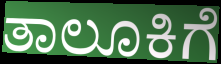
ತಾಲೂಕಿಗೆ